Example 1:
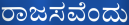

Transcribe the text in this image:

ರಾಜಸವೆಂದು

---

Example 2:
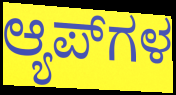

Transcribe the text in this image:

ಆ್ಯಪ್‌ಗಳ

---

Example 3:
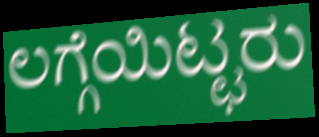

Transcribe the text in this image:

ಲಗ್ಗೆಯಿಟ್ಟರು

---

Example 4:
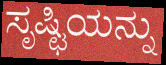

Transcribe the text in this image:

ಸೃಷ್ಟಿಯನ್ನು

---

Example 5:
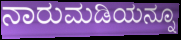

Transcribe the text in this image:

ನಾರುಮಡಿಯನ್ನೂ